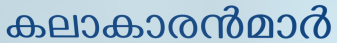
കലാകാരൻമാർ